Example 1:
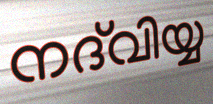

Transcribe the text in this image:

നദ്‌വിയ്യ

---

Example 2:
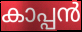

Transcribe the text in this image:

കാപ്പൻ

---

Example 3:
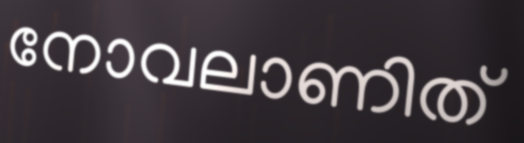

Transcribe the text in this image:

നോവലാണിത്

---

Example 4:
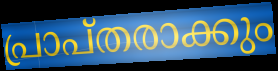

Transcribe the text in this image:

പ്രാപ്തരാക്കും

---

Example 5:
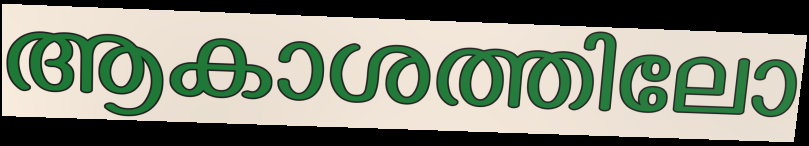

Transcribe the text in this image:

ആകാശത്തിലോ